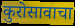
कुरोसावाचा